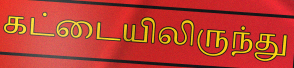
கட்டையிலிருந்து